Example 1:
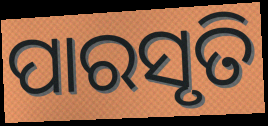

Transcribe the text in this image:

ପାରସୃତି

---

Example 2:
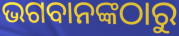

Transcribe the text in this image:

ଭଗବାନଙ୍କଠାରୁ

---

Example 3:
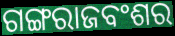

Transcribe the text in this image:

ଗଙ୍ଗରାଜବଂଶର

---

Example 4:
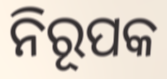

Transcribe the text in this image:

ନିରୂପକ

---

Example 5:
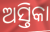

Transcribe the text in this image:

ଅସ୍ତିକା